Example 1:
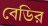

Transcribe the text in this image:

বেডির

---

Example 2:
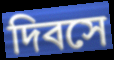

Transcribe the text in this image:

দিবসে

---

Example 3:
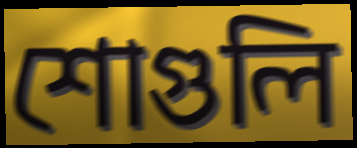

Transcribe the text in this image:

শোগুলি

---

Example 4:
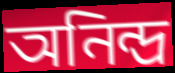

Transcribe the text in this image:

অনিন্দ্র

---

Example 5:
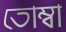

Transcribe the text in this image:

তোম্বা